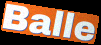
Balle